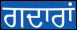
ਗਦਾਰਾਂ